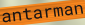
antarman